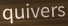
quivers